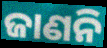
ଜାଣନି